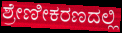
ಶ್ರೇಣೀಕರಣದಲ್ಲಿ